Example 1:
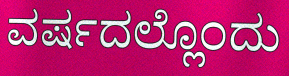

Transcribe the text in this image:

ವರ್ಷದಲ್ಲೊಂದು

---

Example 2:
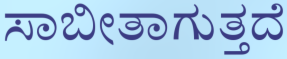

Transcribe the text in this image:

ಸಾಬೀತಾಗುತ್ತದೆ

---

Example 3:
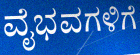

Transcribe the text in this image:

ವೈಭವಗಳಿಗೆ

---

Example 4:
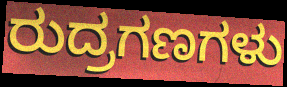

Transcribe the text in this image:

ರುದ್ರಗಣಗಳು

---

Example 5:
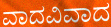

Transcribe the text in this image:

ವಾದವಿವಾದ